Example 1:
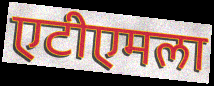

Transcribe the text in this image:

एटीएमला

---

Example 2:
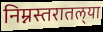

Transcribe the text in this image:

निम्नस्तरातल्या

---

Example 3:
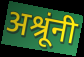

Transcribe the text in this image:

अश्रूंनी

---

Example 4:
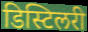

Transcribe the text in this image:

डिस्टिलरी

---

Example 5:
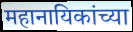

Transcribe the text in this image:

महानायिकांच्या